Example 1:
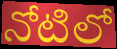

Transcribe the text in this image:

నోటిలో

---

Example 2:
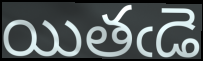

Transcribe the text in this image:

యితఁడె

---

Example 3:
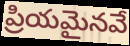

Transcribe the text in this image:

ప్రియమైనవే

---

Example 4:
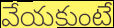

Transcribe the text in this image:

వేయకుంటే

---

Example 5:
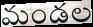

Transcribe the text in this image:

మండల